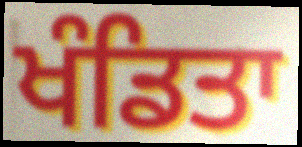
ਖੰਡਿਤਾ